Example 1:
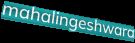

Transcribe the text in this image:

mahalingeshwara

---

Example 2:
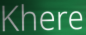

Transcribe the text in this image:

Khere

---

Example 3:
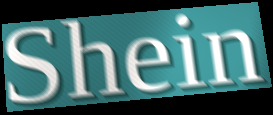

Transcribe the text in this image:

Shein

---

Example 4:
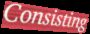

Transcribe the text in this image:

Consisting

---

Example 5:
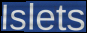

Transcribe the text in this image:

Islets